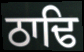
ਠਾਢਿ